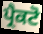
ਪ੍ਰੈਕਟੋ